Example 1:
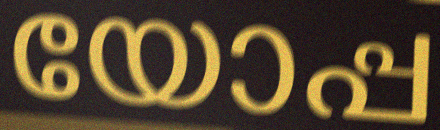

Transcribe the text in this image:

യോപ്പ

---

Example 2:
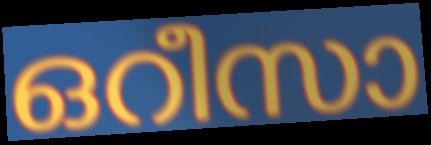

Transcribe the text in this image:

ഒറീസാ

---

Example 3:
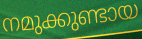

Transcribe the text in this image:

നമുക്കുണ്ടായ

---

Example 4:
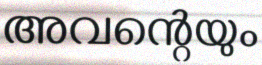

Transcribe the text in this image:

അവന്റെയും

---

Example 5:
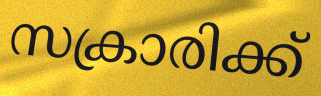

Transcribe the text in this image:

സക്രാരിക്ക്